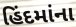
હિંદમાંના